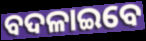
ବଦଳାଇବେ